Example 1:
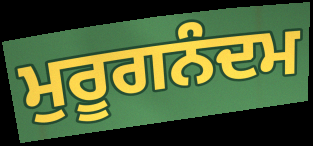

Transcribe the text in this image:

ਮੁਰੂਗਨੰਦਮ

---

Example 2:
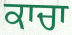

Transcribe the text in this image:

ਕਾਚਾ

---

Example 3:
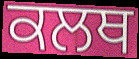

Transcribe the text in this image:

ਕਲਥ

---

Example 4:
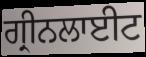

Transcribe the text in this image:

ਗ੍ਰੀਨਲਾਈਟ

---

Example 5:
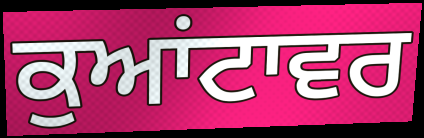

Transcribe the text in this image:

ਕੁਆਂਟਾਵਰ